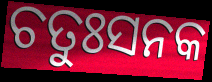
ଚତୁଃସନକ